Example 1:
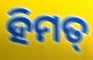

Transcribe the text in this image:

ହିମତ୍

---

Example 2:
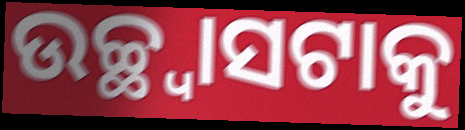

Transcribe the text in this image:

ଉଚ୍ଛ୍ୱାସଟାକୁ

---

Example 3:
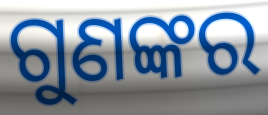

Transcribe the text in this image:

ଗୁଣଙ୍କର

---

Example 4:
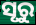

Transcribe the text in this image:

ସୃରୁ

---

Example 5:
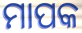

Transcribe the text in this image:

ମାପକ